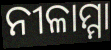
ନୀଳାମ୍ମା